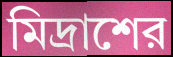
মিদ্রাশের